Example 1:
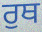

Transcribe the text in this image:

ਰੁਥ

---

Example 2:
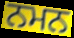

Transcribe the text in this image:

ਨਮਨ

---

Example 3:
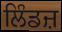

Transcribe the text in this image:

ਲਿੰਡਜ਼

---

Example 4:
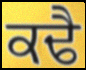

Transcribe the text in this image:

ਕਢੈ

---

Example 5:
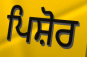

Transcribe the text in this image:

ਪਿਸ਼ੋਰ